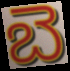
బె